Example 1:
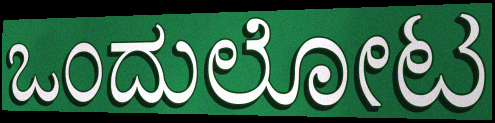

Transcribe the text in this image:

ಒಂದುಲೋಟ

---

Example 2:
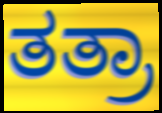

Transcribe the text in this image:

ತತ್ರಾ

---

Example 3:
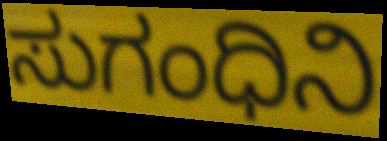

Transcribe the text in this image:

ಸುಗಂಧಿನಿ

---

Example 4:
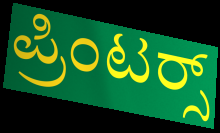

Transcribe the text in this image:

ಪ್ರಿಂಟರ‍್ಸ್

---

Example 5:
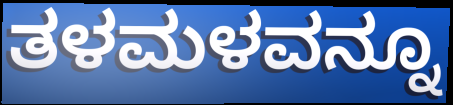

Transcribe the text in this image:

ತಳಮಳವನ್ನೂ